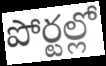
పోర్టల్లో